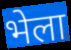
भेला